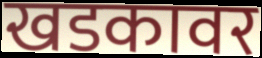
खडकावर